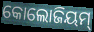
କୋଲୋଜିୟମ୍